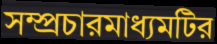
সম্প্রচারমাধ্যমটির